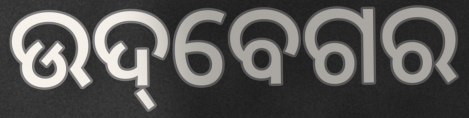
ଉଦ୍‌ବେଗର